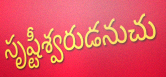
సృష్టీశ్వరుడనుచు